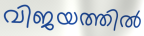
വിജയത്തിൽ